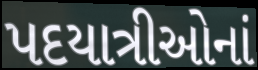
પદયાત્રીઓનાં